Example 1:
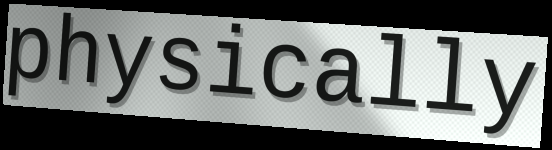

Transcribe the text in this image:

physically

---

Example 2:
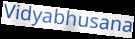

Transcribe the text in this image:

Vidyabhusana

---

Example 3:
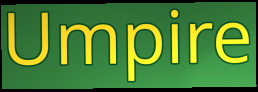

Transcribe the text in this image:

Umpire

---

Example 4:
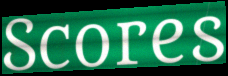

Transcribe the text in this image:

Scores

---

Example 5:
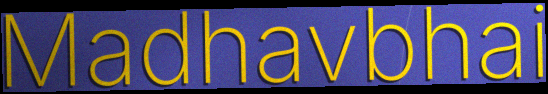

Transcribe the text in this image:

Madhavbhai